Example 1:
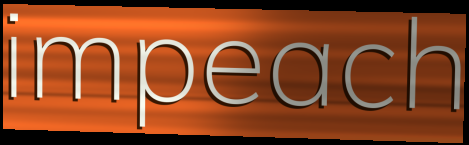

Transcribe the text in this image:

impeach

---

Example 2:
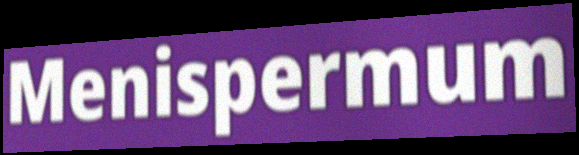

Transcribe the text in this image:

Menispermum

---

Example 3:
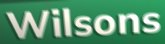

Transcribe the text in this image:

Wilsons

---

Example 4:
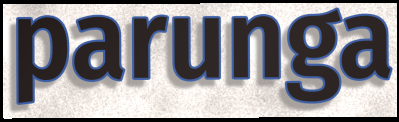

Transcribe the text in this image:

parunga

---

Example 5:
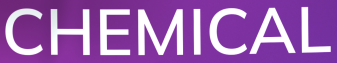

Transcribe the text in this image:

CHEMICAL